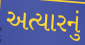
અત્યારનું